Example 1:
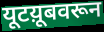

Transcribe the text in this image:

यूटय़ूबवरून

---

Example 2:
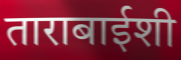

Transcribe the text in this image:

ताराबाईशी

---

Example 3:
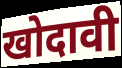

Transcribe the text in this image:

खोदावी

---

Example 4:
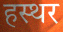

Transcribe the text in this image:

हस्थर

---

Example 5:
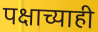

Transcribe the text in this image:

पक्षाच्याही